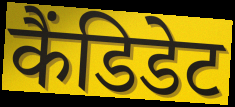
कैंडिडेट